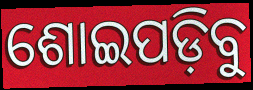
ଶୋଇପଡ଼ିବୁ